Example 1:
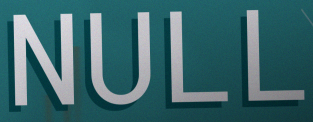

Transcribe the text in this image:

NULL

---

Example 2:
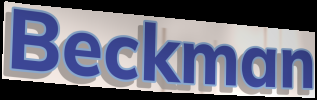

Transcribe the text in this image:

Beckman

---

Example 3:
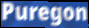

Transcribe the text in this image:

Puregon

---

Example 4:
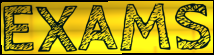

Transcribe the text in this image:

EXAMS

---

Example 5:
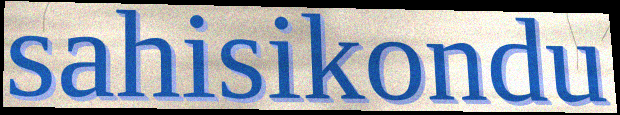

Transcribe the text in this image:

sahisikondu